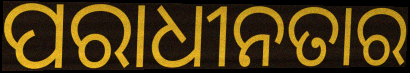
ପରାଧୀନତାର